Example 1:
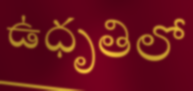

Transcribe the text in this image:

ఉధృతిలో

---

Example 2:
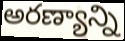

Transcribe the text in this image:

అరణ్యాన్ని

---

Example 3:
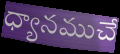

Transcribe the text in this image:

ధ్యానముచే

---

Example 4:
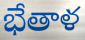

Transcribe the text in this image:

భేతాళ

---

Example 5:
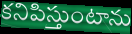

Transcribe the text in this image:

కనిపిస్తుంటాను